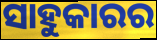
ସାହୁକାରର